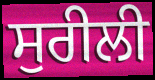
ਸੁਰੀਲੀ